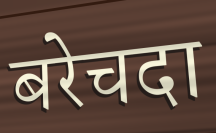
बरेचदा